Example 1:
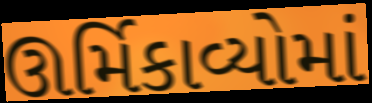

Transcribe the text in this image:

ઊર્મિકાવ્યોમાં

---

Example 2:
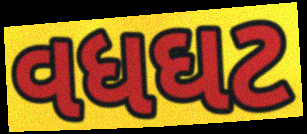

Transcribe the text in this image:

વધઘટ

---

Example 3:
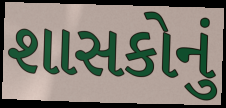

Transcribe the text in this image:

શાસકોનું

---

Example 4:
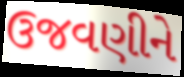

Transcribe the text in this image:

ઉજવણીને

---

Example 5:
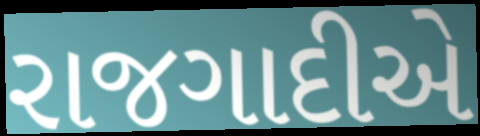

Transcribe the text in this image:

રાજગાદીએ